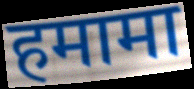
हमामा